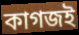
কাগজই